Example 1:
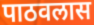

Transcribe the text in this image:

पाठवलास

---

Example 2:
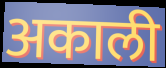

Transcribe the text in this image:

अकाली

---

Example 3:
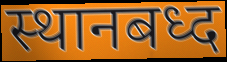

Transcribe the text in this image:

स्थानबध्द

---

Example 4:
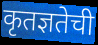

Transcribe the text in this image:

कृतज्ञतेची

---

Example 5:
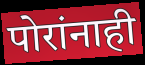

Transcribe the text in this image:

पोरांनाही